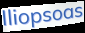
Iliopsoas